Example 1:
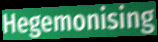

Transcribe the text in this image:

Hegemonising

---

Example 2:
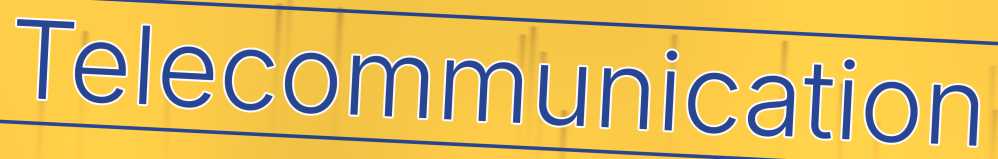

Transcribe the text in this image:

Telecommunication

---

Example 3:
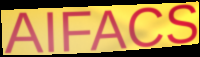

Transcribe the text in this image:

AIFACS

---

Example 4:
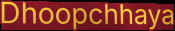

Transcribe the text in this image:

Dhoopchhaya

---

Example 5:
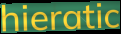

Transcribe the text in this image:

hieratic